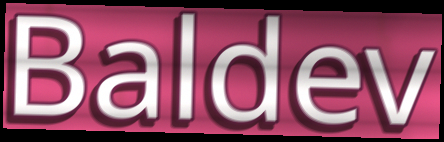
Baldev